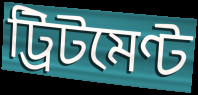
ট্ৰিটমেণ্ট